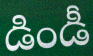
డిండీ